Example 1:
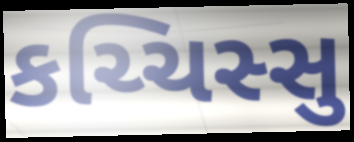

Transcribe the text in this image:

કચ્ચિસ્સુ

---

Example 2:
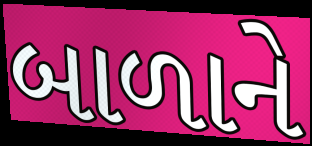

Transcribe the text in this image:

બાળાને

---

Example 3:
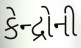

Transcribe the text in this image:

કેન્દ્રોની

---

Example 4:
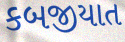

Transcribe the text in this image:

કબજીયાત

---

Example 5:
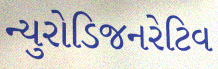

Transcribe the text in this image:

ન્યુરોડિજનરેટિવ